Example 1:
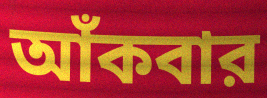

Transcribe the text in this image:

আঁকবার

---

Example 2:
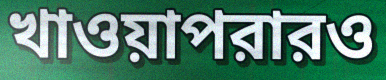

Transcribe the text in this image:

খাওয়াপরারও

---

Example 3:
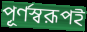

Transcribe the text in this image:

পূর্ণস্বরূপই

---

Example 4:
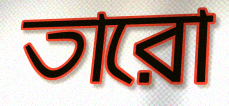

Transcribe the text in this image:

তারো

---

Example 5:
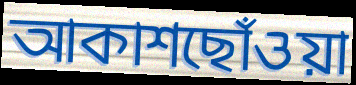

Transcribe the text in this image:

আকাশছোঁওয়া